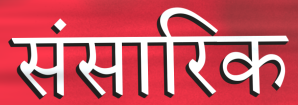
संसारिक